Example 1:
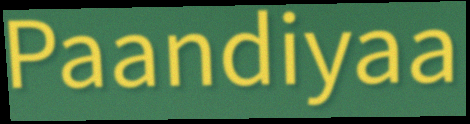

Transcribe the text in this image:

Paandiyaa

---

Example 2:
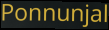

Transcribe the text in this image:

Ponnunjal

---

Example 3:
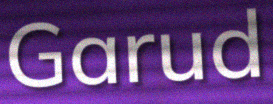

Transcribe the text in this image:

Garud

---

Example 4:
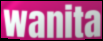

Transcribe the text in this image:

wanita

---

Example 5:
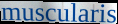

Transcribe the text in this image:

muscularis